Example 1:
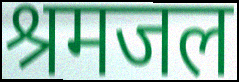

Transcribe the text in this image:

श्रमजल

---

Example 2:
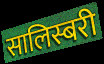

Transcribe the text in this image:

सालिस्बरी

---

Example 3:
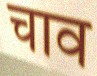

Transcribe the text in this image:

चाव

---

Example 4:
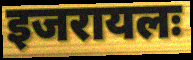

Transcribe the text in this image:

इजरायलः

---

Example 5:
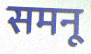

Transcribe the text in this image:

समनू